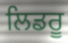
ਲਿਡਰੂ